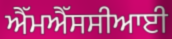
ਐੱਮਐੱਸਸੀਆਈ